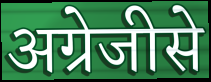
अग्रेजीसे